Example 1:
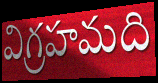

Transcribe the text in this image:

విగ్రహమది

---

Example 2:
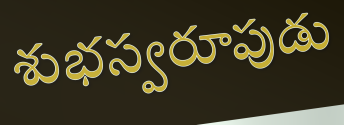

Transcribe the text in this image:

శుభస్వరూపుడు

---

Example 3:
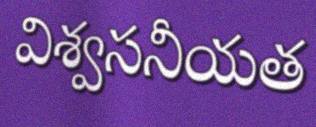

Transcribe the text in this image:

విశ్వసనీయత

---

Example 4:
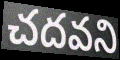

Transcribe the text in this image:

చదవని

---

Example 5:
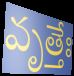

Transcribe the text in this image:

వృత్తేః